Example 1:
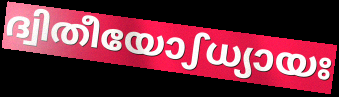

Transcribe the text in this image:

ദ്വിതീയോഽധ്യായഃ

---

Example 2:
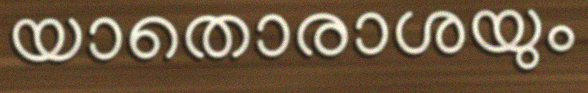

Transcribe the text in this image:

യാതൊരാശയും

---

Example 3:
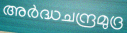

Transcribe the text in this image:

അർദ്ധചന്ദ്രമുദ്ര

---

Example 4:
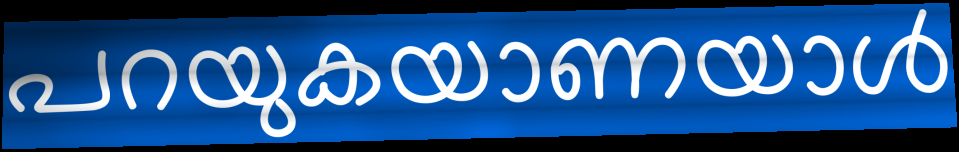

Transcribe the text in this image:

പറയുകയാണയാൾ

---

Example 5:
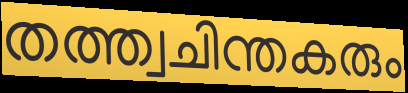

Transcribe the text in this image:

തത്ത്വചിന്തകരും